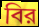
বির